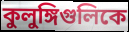
কুলুঙ্গিগুলিকে